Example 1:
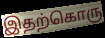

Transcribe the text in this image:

இதற்கொரு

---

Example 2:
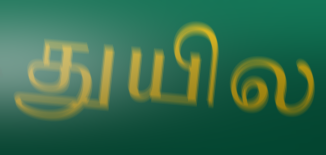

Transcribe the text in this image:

துயில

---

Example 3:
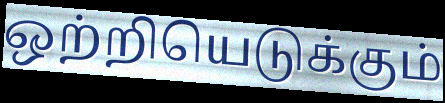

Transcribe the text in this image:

ஒற்றியெடுக்கும்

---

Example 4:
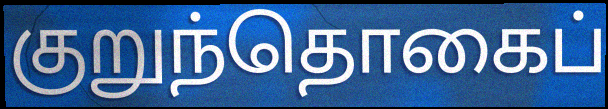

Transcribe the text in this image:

குறுந்தொகைப்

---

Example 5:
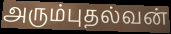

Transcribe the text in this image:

அரும்புதல்வன்